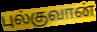
புல்குவான்